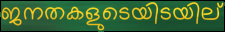
ജനതകളുടെയിടയില്